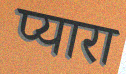
प्यारा